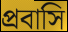
প্রবাসি